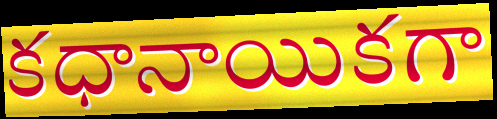
కధానాయికగా